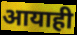
आयाही